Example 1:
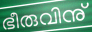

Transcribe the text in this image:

ഭീരുവിനു്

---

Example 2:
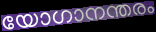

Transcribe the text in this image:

യോഗാനന്തരം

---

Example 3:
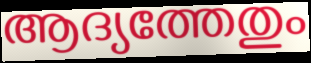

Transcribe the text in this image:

ആദ്യത്തേതും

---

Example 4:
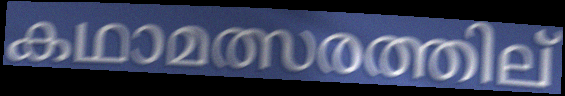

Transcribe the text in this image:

കഥാമത്സരത്തില്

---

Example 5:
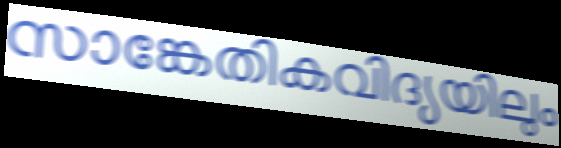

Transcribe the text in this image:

സാങ്കേതികവിദ്യയിലും